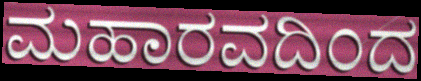
ಮಹಾರವದಿಂದ